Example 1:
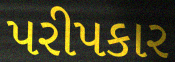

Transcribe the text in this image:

પરીપકાર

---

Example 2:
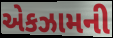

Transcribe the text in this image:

એકઝામની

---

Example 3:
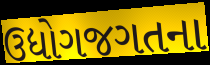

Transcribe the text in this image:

ઉદ્યોગજગતના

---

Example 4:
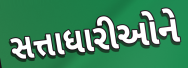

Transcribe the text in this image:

સત્તાધારીઓને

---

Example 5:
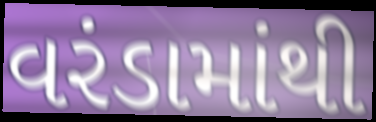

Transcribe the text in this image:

વરંડામાંથી